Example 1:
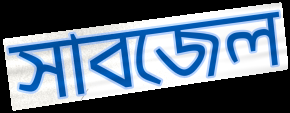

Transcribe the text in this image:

সাবজেল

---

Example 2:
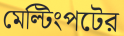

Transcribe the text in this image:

মেল্টিংপটের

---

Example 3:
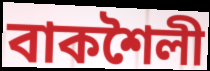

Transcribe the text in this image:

বাকশৈলী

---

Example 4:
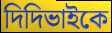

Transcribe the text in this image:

দিদিভাইকে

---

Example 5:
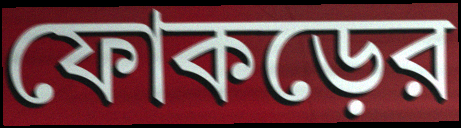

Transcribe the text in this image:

ফোকড়ের